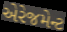
એરેજમેન્ટ